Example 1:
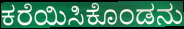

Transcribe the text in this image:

ಕರೆಯಿಸಿಕೊಂಡನು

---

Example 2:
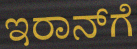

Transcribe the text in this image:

ಇರಾನ್‌ಗೆ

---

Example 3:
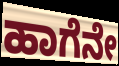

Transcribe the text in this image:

ಹಾಗೆನೇ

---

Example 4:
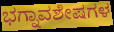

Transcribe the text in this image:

ಭಗ್ನಾವಶೇಷಗಳ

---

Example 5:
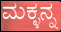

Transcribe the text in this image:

ಮಕ್ಳನ್ನ